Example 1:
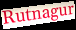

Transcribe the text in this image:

Rutnagur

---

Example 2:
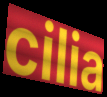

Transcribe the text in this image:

cilia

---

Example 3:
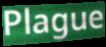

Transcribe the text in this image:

Plague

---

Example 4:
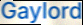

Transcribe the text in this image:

Gaylord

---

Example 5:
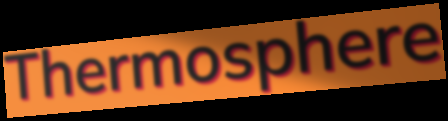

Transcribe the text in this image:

Thermosphere